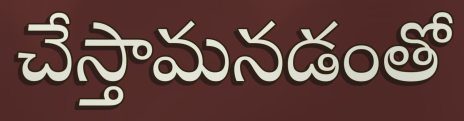
చేస్తామనడంతో